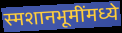
स्मशानभूमींमध्ये